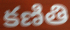
కణితి